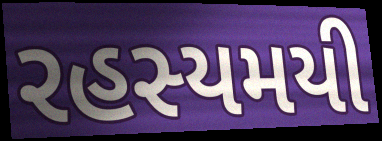
રહસ્યમયી